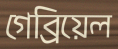
গেব্রিয়েল